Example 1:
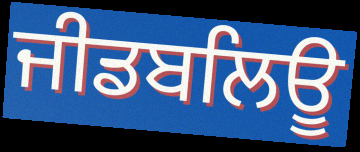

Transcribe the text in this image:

ਜੀਡਬਲਿਊ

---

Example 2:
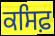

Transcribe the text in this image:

ਕਸਿਫ਼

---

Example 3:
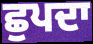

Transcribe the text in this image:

ਛੁਪਦਾ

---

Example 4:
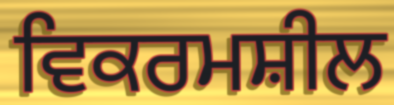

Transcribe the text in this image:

ਵਿਕਰਮਸ਼ੀਲ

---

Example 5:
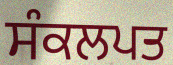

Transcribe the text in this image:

ਸੰਕਲਪਤ